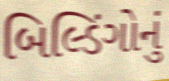
બિલ્ડિંગોનું